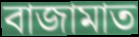
বাজামাত